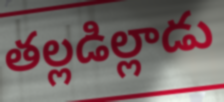
తల్లడిల్లాడు